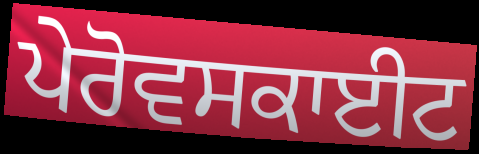
ਪੇਰੋਵਸਕਾਈਟ